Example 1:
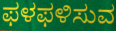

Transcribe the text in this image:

ಫಳಫಳಿಸುವ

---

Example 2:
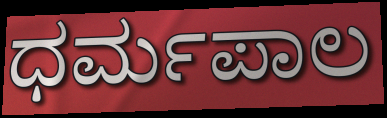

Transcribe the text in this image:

ಧರ್ಮಪಾಲ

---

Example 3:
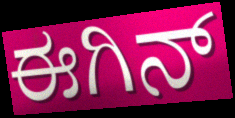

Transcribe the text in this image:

ಈಗಿನ್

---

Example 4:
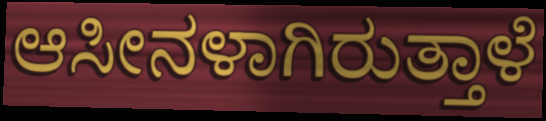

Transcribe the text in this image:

ಆಸೀನಳಾಗಿರುತ್ತಾಳೆ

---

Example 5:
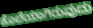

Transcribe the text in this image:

ಕೊಲೆಯಾಗಿರುವುದು